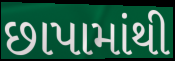
છાપામાંથી